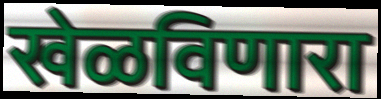
खेळविणारा